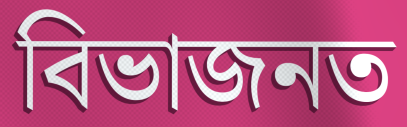
বিভাজনত